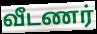
வீடணர்